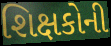
શિક્ષકોની